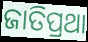
ଜାତିପ୍ରଥା